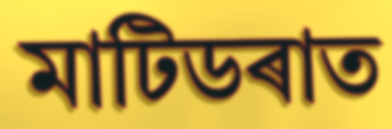
মাটিডৰাত